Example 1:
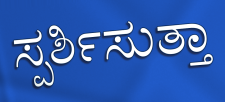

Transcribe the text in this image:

ಸ್ಪರ್ಶಿಸುತ್ತಾ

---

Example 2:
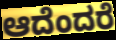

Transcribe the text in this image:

ಆದೆಂದರೆ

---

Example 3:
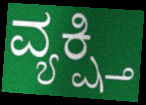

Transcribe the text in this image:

ವ್ಯಕ್ಷ್ತಿ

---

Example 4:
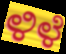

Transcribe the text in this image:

ಳಿಳೆ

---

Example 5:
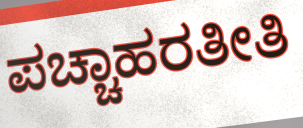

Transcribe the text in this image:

ಪಚ್ಚಾಹರತೀತಿ